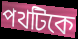
পথটিকে